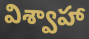
విశ్వాహా